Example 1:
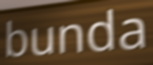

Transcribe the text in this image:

bunda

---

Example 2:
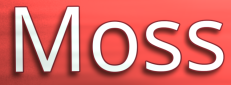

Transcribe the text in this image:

Moss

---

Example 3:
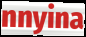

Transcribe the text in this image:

nnyina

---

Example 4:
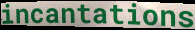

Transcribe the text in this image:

incantations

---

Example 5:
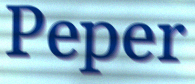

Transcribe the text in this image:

Peper